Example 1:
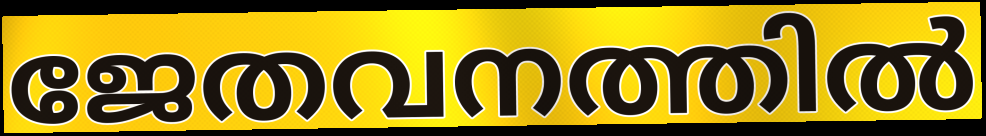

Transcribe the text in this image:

ജേതവനത്തിൽ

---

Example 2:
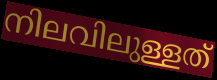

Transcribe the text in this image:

നിലവിലുള്ളത്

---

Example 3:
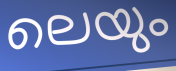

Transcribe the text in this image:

ലെയും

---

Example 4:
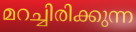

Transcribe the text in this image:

മറച്ചിരിക്കുന്ന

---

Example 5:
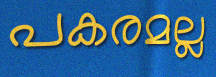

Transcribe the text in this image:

പകരമല്ല